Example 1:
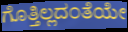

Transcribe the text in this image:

ಗೊತ್ತಿಲ್ಲದಂತೆಯೇ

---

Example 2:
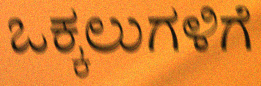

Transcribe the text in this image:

ಒಕ್ಕಲುಗಳಿಗೆ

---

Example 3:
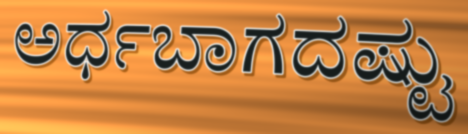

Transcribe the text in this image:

ಅರ್ಧಬಾಗದಷ್ಟು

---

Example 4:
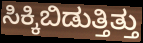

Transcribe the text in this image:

ಸಿಕ್ಕಿಬಿಡುತ್ತಿತ್ತು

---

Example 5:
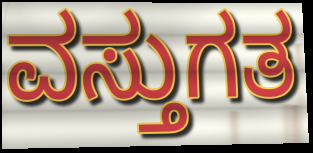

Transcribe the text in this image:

ವಸ್ತುಗತ